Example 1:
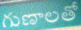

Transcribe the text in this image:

గుణాలతో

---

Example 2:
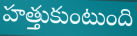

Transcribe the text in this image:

హత్తుకుంటుంది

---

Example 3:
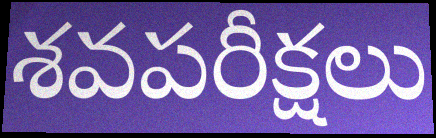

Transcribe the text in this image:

శవపరీక్షలు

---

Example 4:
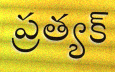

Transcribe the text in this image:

ప్రత్యక్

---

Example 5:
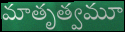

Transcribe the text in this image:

మాతృత్వమూ